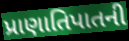
પ્રાણાતિપાતની